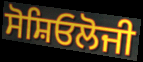
ਸੋਸ਼ਿਓਲੋਜੀ